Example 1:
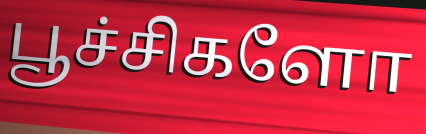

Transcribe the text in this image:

பூச்சிகளோ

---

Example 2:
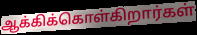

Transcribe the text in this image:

ஆக்கிக்கொள்கிறார்கள்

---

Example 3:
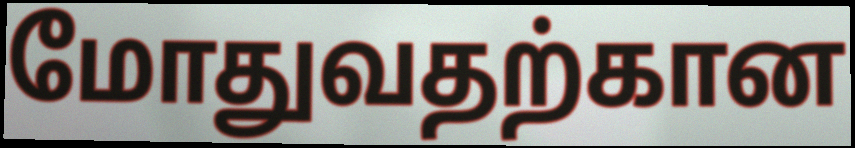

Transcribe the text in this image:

மோதுவதற்கான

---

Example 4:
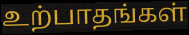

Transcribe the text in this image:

உற்பாதங்கள்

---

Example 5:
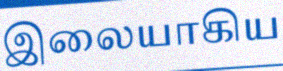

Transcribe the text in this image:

இலையாகிய